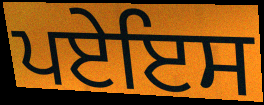
ਪਏਇਸ